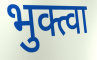
भुक्त्वा